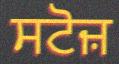
ਸਟੋਜ਼